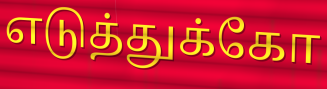
எடுத்துக்கோ